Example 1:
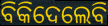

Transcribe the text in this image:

ବିକିଦେଲେବି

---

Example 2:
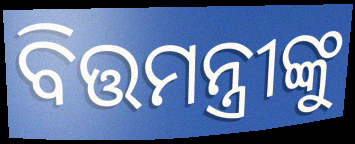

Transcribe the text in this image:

ବିତ୍ତମନ୍ତ୍ରୀଙ୍କୁ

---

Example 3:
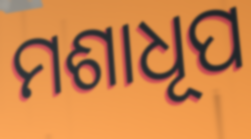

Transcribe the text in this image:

ମଶାଧୂପ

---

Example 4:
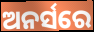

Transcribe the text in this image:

ଅନର୍ସରେ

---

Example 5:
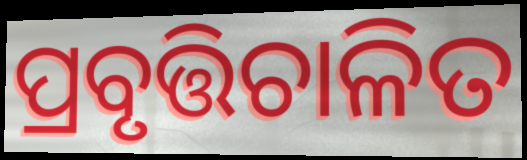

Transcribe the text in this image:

ପ୍ରବୃତ୍ତିଚାଳିତ